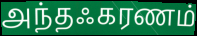
அந்தஃகரணம்